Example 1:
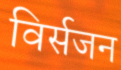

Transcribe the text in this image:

विर्सजन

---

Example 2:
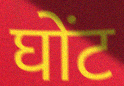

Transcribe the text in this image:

घोंट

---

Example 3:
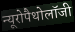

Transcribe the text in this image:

न्यूरोपैथोलॉजी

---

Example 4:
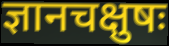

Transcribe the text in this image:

ज्ञानचक्षुषः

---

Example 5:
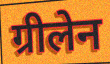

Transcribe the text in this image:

ग्रीलेन